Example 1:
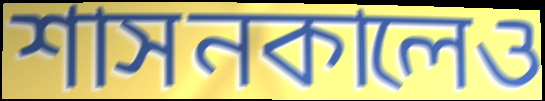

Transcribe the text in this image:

শাসনকালেও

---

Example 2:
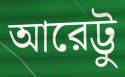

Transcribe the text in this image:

আরেট্টু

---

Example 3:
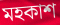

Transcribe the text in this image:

মহকাশ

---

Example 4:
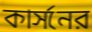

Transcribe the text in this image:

কার্সনের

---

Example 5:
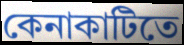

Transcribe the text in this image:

কেনাকাটিতে